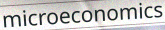
microeconomics